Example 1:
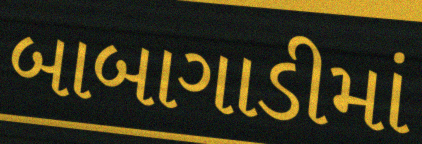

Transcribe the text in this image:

બાબાગાડીમાં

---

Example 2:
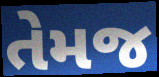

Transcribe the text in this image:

તેમજ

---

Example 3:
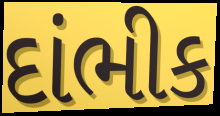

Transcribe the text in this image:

દાંભીક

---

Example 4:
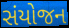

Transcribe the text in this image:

સંયોજન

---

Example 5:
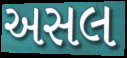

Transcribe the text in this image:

અસલ